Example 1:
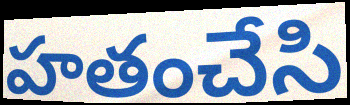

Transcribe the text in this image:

హతంచేసి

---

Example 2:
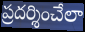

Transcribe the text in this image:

ప్రదర్శించేలా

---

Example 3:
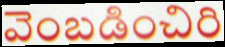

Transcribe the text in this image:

వెంబడించిరి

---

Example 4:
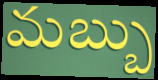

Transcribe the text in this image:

మబ్బు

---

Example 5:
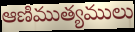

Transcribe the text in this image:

ఆణిముత్యములు